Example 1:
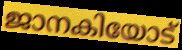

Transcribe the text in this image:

ജാനകിയോട്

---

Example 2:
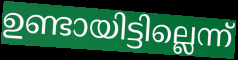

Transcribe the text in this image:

ഉണ്ടായിട്ടില്ലെന്ന്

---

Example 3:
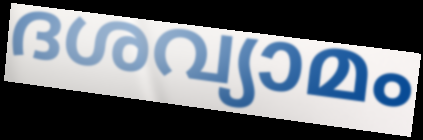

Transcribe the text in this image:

ദശവ്യാമം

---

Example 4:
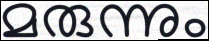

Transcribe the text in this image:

മരുന്നും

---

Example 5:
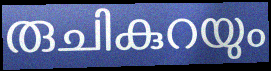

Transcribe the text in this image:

രുചികുറയും